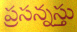
ప్రసన్నస్తు